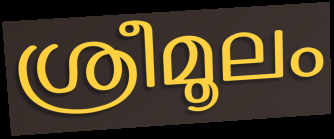
ശ്രീമൂലം